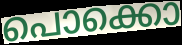
പൊക്കൊ